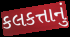
કલકત્તાનું